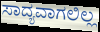
ಸಾದ್ಯವಾಗಲಿಲ್ಲ